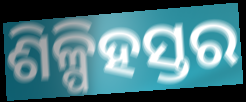
ଶିଳ୍ପିହସ୍ତର